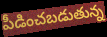
పీడించబడుతున్న